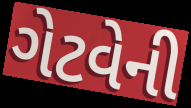
ગેટવેની